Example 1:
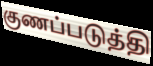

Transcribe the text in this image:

குணப்படுத்தி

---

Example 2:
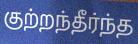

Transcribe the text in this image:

குற்றந்தீர்ந்த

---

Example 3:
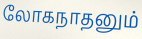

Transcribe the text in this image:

லோகநாதனும்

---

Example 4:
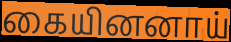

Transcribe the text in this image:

கையினனாய்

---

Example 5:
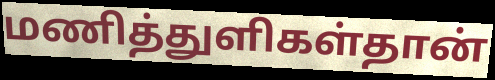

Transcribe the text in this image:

மணித்துளிகள்தான்